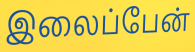
இலைப்பேன்